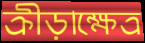
ক্রীড়াক্ষেত্র